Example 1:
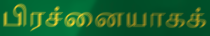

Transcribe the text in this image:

பிரச்னையாகக்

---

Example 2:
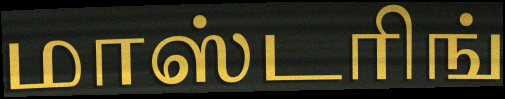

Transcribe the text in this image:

மாஸ்டரிங்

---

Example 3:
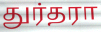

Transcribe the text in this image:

துர்தரா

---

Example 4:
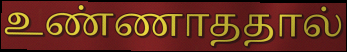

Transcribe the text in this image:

உண்ணாததால்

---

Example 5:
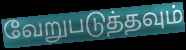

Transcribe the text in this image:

வேறுபடுத்தவும்